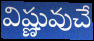
విష్ణువుచే